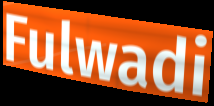
Fulwadi